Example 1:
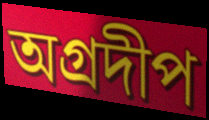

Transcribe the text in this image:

অগ্রদীপ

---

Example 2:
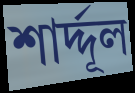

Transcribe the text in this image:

শার্দ্দূল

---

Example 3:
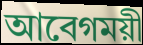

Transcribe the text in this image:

আবেগময়ী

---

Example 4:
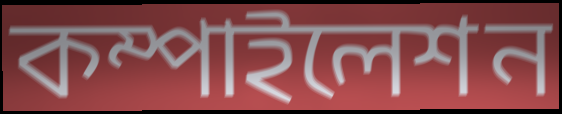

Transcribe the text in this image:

কম্পাইলেশন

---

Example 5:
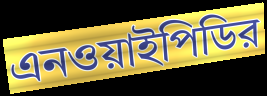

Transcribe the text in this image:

এনওয়াইপিডির